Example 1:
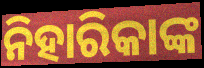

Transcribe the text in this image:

ନିହାରିକାଙ୍କ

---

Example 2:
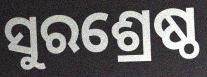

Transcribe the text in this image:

ସୁରଶ୍ରେଷ୍ଠ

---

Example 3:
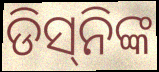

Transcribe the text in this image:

ଡିସ୍‌ନିଙ୍କ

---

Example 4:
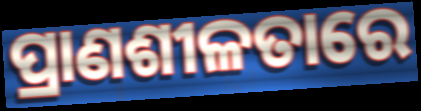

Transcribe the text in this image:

ପ୍ରାଣଶୀଳତାରେ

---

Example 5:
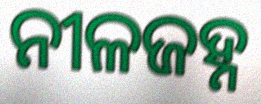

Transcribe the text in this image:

ନୀଳଜହ୍ନ